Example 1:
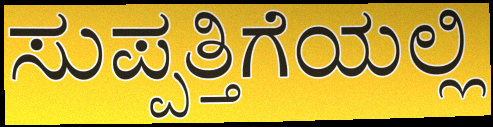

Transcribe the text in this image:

ಸುಪ್ಪತ್ತಿಗೆಯಲ್ಲಿ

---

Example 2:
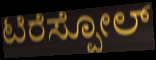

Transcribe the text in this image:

ಟೆರೆಸ್ಪೋಲ್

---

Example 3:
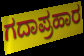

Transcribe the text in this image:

ಗದಾಪ್ರಹಾರ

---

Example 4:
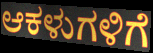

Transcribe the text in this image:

ಆಕಳುಗಳಿಗೆ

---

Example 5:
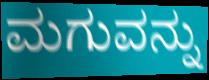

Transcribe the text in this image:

ಮಗುವನ್ನು